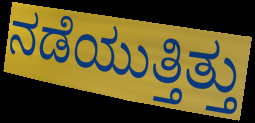
ನಡೆಯುತ್ತಿತ್ತು